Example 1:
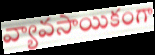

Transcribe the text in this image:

వ్యావసాయికంగా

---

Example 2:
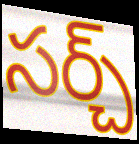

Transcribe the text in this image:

సర్చ్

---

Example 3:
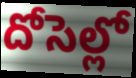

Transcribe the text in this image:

దోసెల్లో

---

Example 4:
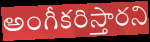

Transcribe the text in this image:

అంగీకరిస్తారని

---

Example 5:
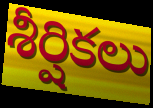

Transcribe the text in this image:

శీర్షికలు